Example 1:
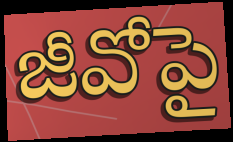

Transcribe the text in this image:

జీవోపై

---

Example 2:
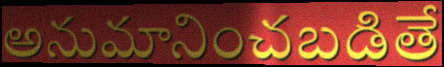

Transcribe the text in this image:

అనుమానించబడితే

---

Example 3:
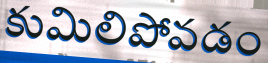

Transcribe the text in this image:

కుమిలిపోవడం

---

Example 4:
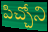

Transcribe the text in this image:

పిచ్చోని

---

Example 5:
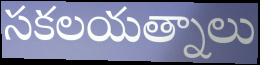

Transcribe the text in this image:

సకలయత్నాలు